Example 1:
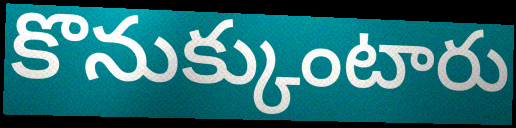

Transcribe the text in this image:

కొనుక్కుంటారు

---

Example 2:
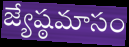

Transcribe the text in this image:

జ్యేష్ఠమాసం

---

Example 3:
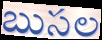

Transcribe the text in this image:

బుసల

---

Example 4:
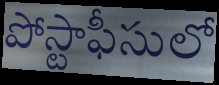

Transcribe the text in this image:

పోస్టాఫీసులో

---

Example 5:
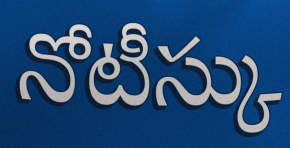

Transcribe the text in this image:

నోటీస్కు